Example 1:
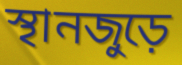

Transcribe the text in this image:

স্থানজুড়ে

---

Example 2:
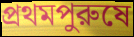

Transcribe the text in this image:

প্রথমপুরুষে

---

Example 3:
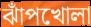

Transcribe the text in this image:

ঝাঁপখোলা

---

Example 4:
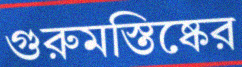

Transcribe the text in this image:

গুরুমস্তিষ্কের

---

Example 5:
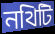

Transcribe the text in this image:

নথিটি